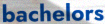
bachelors